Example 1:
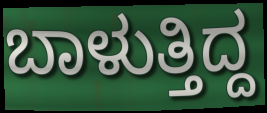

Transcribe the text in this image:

ಬಾಳುತ್ತಿದ್ದ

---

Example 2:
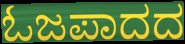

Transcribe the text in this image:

ಓಜಪಾದದ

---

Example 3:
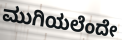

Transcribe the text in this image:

ಮುಗಿಯಲೆಂದೇ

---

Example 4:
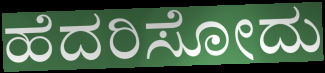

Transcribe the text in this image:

ಹೆದರಿಸೋದು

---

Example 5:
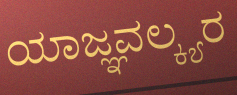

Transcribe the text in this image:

ಯಾಜ್ಞವಲ್ಕ್ಯರ